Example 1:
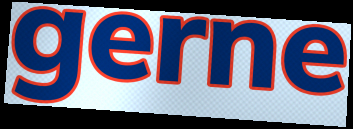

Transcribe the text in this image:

gerne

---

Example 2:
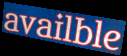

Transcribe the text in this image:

availble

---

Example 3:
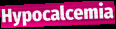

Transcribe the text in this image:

Hypocalcemia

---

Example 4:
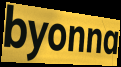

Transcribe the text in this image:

byonna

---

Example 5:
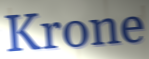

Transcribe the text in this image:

Krone